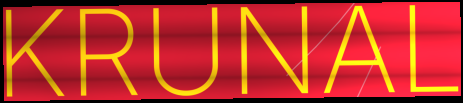
KRUNAL